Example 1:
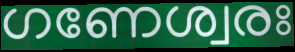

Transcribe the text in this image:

ഗണേശ്വരഃ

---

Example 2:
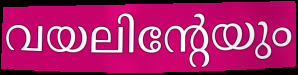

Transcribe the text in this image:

വയലിന്റേയും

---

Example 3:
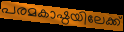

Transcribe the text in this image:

പരമകാഷ്ഠയിലേക്ക്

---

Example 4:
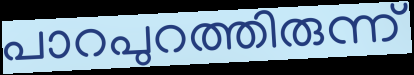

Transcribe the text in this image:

പാറപുറത്തിരുന്ന്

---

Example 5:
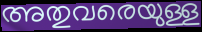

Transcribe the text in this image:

അതുവരെയുള്ള